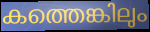
കത്തെങ്കിലും